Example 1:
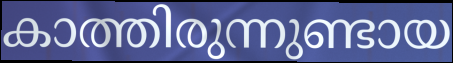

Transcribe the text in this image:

കാത്തിരുന്നുണ്ടായ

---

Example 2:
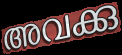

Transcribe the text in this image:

അവക്കു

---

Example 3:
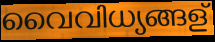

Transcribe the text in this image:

വൈവിധ്യങ്ങള്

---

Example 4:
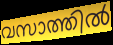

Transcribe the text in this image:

വസാത്തിൽ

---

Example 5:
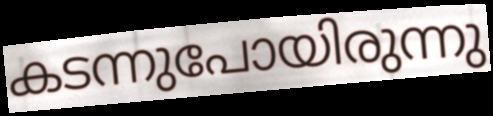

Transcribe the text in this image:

കടന്നുപോയിരുന്നു